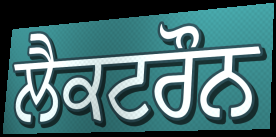
ਲੈਕਟਰੌਨ